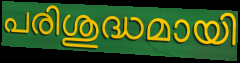
പരിശുദ്ധമായി